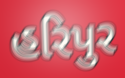
હરિપુર